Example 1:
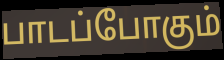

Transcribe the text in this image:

பாடப்போகும்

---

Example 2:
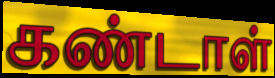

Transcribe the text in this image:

கண்டாள்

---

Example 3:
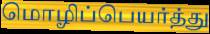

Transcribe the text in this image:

மொழிப்பெயர்த்து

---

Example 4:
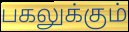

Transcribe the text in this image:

பகலுக்கும்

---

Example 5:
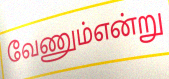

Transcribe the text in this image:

வேணும்என்று